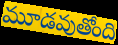
మూడవుతోంది